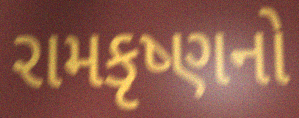
રામકૃષ્ણનો